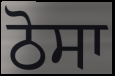
ਠੋਸਾ